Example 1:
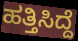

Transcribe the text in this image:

ಹತ್ತಿಸಿದ್ದೆ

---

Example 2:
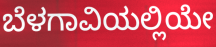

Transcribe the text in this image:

ಬೆಳಗಾವಿಯಲ್ಲಿಯೇ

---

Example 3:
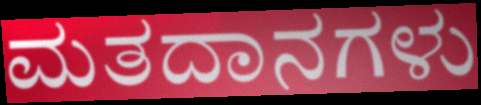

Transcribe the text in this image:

ಮತದಾನಗಳು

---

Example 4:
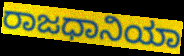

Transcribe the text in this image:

ರಾಜಧಾನಿಯಾ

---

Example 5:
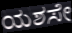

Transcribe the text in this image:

ಯಶಸೇ